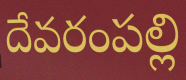
దేవరంపల్లి